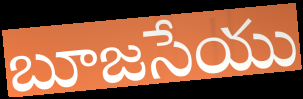
బూజసేయు